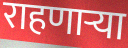
राहणार्‍या